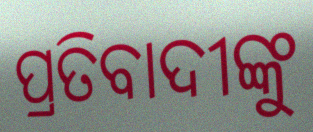
ପ୍ରତିବାଦୀଙ୍କୁ